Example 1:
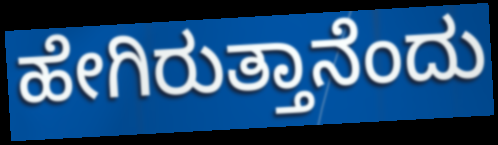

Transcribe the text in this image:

ಹೇಗಿರುತ್ತಾನೆಂದು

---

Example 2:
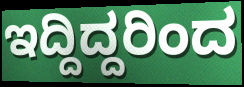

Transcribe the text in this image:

ಇದ್ದಿದ್ದರಿಂದ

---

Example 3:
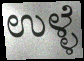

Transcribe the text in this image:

ಉಳ್ಳೆ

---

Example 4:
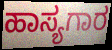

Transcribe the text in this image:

ಹಾಸ್ಯಗಾರ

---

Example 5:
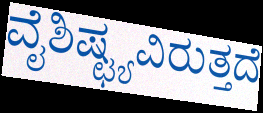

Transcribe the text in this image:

ವೈಶಿಷ್ಟ್ಯವಿರುತ್ತದೆ